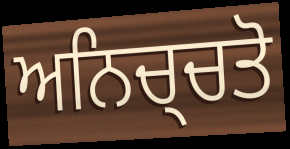
ਅਨਿਚ੍ਚਤੋ